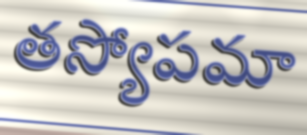
తస్యోపమా